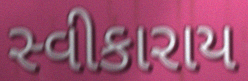
સ્વીકારાય